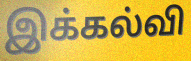
இக்கல்வி